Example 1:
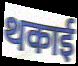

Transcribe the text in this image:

थकाई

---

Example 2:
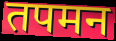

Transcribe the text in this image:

तपमन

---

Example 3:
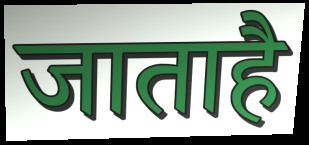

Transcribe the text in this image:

जाताहै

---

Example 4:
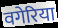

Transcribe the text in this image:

वगेरिया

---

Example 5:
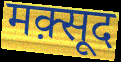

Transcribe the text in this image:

मक़्सूद